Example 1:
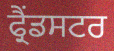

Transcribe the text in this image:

ਫ੍ਰੈਂਡਸਟਰ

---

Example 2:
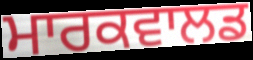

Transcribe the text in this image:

ਮਾਰਕਵਾਲਡ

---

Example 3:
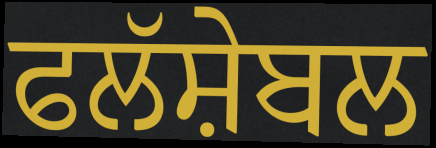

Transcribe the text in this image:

ਫਲੱਸ਼ੇਬਲ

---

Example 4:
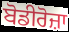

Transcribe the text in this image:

ਬੋਡੀਰੋਜ਼ਾ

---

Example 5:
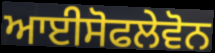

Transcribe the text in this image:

ਆਈਸੋਫਲੇਵੋਨ